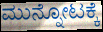
ಮುನ್ನೋಟಕ್ಕೆ